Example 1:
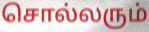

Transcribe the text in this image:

சொல்லரும்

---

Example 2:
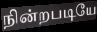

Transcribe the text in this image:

நின்றபடியே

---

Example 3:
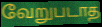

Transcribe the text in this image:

வேறுபடாத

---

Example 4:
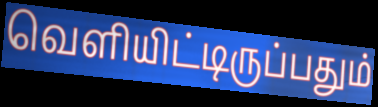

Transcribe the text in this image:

வெளியிட்டிருப்பதும்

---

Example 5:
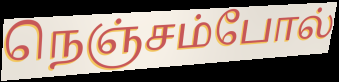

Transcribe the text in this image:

நெஞ்சம்போல்